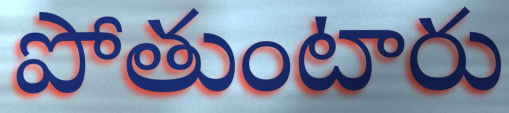
పోతుంటారు